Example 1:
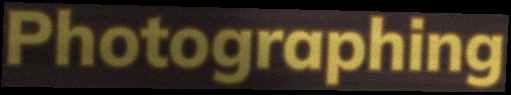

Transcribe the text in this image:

Photographing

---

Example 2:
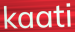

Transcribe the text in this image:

kaati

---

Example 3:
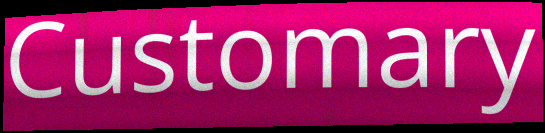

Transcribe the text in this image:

Customary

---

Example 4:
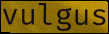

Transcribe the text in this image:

vulgus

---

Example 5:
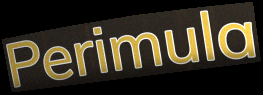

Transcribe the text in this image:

Perimula